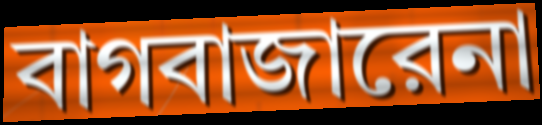
বাগবাজারেনা